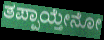
ತಪ್ಪಾಯ್ತೇನೋ